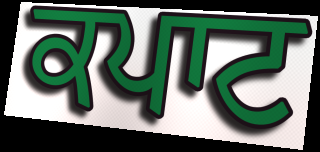
ਕਪਾਟ